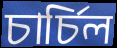
চাৰ্চিল